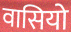
वासियो